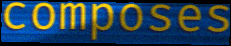
composes